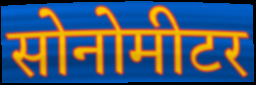
सोनोमीटर